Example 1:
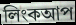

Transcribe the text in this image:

লিংকআপ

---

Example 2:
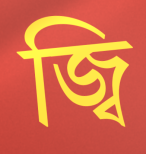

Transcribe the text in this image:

জ্বি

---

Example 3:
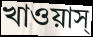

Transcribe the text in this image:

খাওয়াস্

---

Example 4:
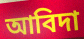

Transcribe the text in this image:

আবিদা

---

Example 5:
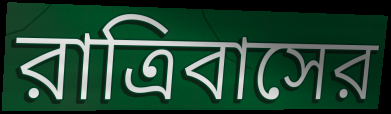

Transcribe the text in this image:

রাত্রিবাসের